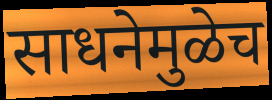
साधनेमुळेच